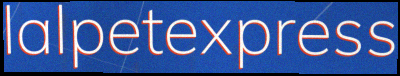
lalpetexpress